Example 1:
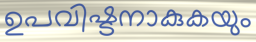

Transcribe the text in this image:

ഉപവിഷ്ടനാകുകയും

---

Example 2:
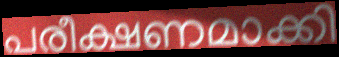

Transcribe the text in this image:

പരീക്ഷണമാക്കി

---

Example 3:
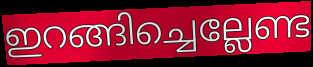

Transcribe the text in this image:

ഇറങ്ങിച്ചെല്ലേണ്ട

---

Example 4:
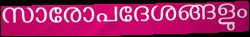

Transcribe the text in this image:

സാരോപദേശങ്ങളും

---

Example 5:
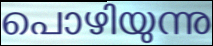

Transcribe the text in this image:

പൊഴിയുന്നു